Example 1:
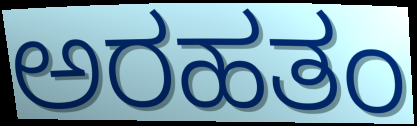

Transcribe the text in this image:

ಅರಹತಂ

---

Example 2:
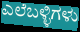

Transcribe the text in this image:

ಎಲೆಬಳ್ಳಿಗಳು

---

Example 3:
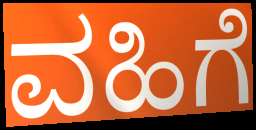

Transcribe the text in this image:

ವಹಿಗೆ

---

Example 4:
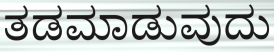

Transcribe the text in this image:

ತಡಮಾಡುವುದು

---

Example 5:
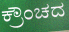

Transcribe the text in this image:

ಕ್ರೌಂಚದ